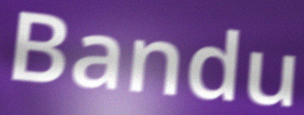
Bandu